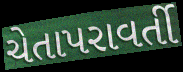
ચેતાપરાવર્તી